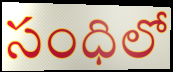
సంధిలో